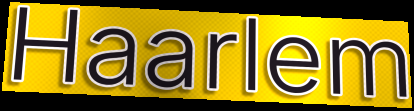
Haarlem